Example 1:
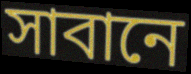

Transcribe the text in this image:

সাবানে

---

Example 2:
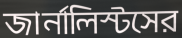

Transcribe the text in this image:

জার্নালিস্টসের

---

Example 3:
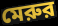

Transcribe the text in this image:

মেরুর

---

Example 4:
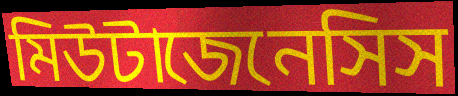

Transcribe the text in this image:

মিউটাজেনেসিস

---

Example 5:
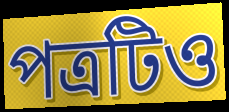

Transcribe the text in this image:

পত্রটিও